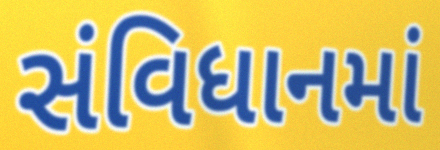
સંવિધાનમાં